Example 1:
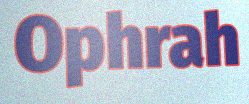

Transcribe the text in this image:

Ophrah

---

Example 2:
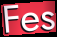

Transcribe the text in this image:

Fes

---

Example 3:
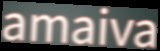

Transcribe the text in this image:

amaiva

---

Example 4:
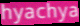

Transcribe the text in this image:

hyachya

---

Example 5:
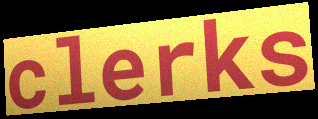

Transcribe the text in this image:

clerks